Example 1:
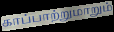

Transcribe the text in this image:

காப்பாற்றுமாறும்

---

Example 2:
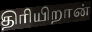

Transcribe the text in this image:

திரியிறான்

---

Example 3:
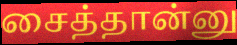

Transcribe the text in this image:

சைத்தான்னு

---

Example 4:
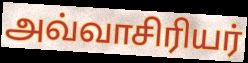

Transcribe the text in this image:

அவ்வாசிரியர்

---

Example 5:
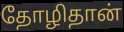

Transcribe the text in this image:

தோழிதான்